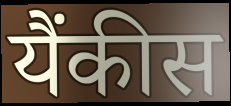
यैंकीस